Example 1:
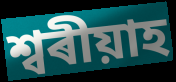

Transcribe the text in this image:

শ্বৰীয়াহ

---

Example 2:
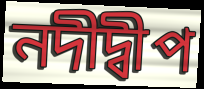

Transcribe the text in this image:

নদীদ্বীপ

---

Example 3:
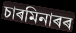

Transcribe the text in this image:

চাৰমিনাৰৰ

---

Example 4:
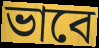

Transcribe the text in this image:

ভাবে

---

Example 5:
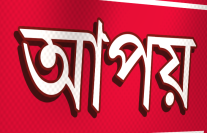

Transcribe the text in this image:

আপয়